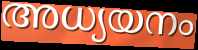
അധ്യയനം